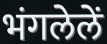
भंगलेलें